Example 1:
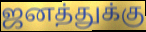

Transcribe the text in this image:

ஜனத்துக்கு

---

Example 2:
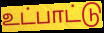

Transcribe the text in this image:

உட்பாட்டு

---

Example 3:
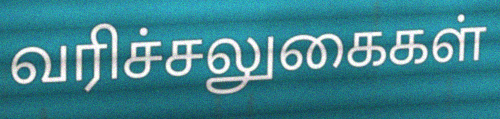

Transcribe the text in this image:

வரிச்சலுகைகள்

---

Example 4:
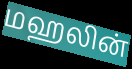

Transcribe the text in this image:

மஹலின்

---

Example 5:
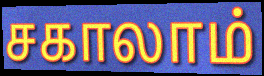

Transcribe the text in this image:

சகாலாம்